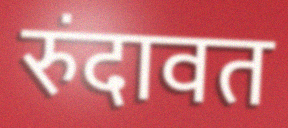
रुंदावत